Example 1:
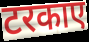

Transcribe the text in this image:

टरकाए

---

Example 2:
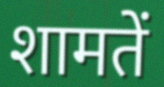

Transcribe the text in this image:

शामतें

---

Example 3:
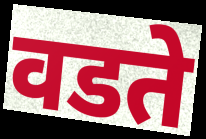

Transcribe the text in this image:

वडते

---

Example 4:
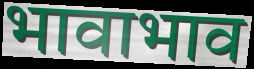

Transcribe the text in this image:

भावाभाव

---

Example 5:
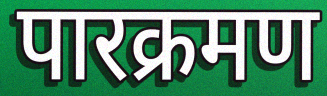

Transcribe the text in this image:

पारक्रमण